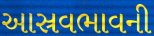
આસ્રવભાવની